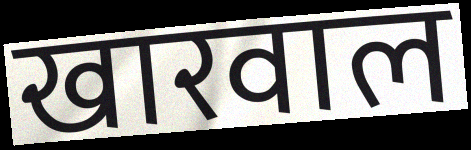
खारवाल